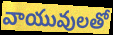
వాయువులతో